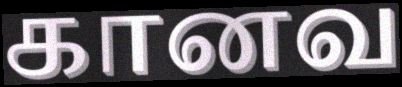
கானவ